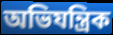
অভিযন্ত্ৰিক